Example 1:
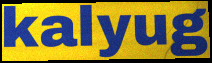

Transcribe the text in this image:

kalyug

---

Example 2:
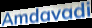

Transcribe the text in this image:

Amdavadi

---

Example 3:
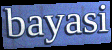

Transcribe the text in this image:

bayasi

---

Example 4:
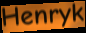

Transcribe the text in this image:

Henryk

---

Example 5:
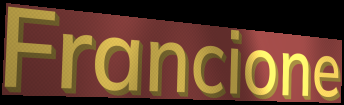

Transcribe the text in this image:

Francione